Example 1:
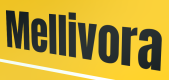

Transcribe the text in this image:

Mellivora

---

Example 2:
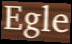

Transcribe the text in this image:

Egle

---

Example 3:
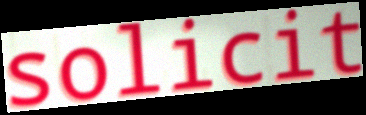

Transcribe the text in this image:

solicit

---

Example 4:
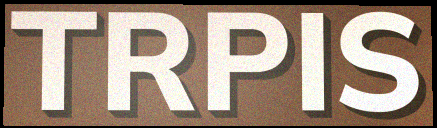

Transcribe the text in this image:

TRPIS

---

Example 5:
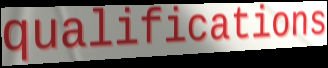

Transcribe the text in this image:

qualifications